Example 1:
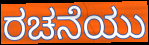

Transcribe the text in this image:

ರಚನೆಯು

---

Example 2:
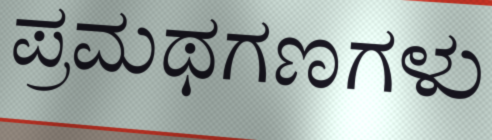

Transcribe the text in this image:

ಪ್ರಮಥಗಣಗಳು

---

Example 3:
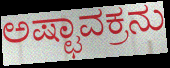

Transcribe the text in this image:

ಅಷ್ಟಾವಕ್ರನು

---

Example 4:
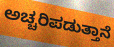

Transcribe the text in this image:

ಅಚ್ಚರಿಪಡುತ್ತಾನೆ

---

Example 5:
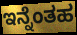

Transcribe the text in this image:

ಇನ್ನೆಂತಹ